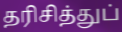
தரிசித்துப்